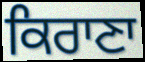
ਕਿਰਾਣਾ